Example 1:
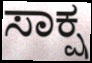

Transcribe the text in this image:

ಸಾಕ್ಷ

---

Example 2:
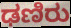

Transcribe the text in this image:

ಢಣಿರು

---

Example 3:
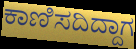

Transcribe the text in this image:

ಕಾಣಿಸದಿದ್ದಾಗ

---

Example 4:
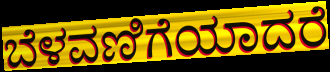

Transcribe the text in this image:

ಬೆಳವಣಿಗೆಯಾದರೆ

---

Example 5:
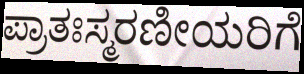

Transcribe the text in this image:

ಪ್ರಾತಃಸ್ಮರಣೀಯರಿಗೆ